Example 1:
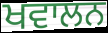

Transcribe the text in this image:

ਖਵਾਲਨ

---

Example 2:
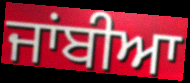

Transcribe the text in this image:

ਜਾਂਬੀਆ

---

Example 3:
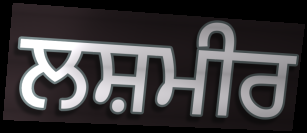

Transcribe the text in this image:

ਲਸ਼ਮੀਰ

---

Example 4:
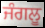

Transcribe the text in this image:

ਜੰਗਲੂ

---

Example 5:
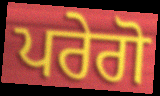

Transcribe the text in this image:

ਪਰੇਗੋ